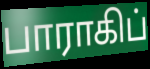
பாராகிப்